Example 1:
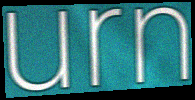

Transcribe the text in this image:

urn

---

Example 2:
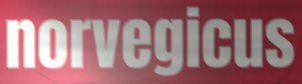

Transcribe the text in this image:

norvegicus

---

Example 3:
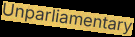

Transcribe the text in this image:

Unparliamentary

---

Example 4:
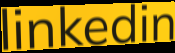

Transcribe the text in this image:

linkedin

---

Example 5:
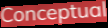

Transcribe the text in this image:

Conceptual